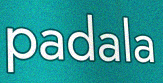
padala